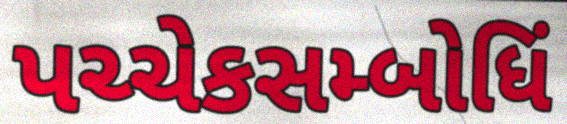
પચ્ચેકસમ્બોધિં